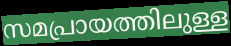
സമപ്രായത്തിലുള്ള